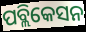
ପବ୍ଲିକେସନ